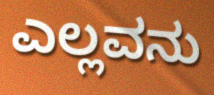
ಎಲ್ಲವನು